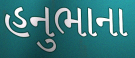
હનુભાના